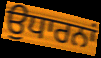
ਉਧਾਰਨਾਂ